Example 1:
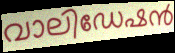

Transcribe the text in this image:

വാലിഡേഷൻ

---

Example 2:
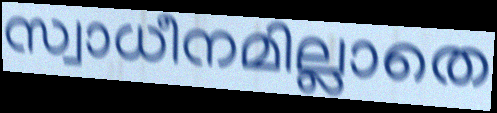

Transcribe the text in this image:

സ്വാധീനമില്ലാതെ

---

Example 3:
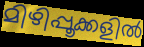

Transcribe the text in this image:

മിഴിപ്പൂക്കളിൽ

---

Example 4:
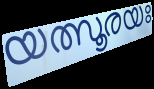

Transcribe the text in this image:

യത്സൂരയഃ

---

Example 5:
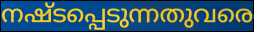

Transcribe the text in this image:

നഷ്ടപ്പെടുന്നതുവരെ